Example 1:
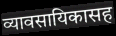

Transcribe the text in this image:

व्यावसायिकासह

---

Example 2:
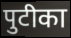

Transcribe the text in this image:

पुटीका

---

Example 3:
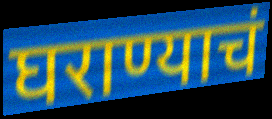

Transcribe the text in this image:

घराण्याचं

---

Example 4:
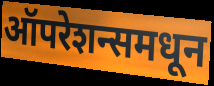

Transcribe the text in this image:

ऑपरेशन्समधून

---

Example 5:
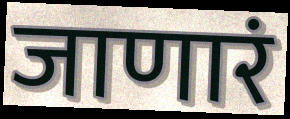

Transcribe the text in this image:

जाणारं